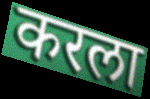
करला